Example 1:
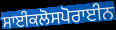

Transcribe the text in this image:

ਸਾਈਕਲੋਸਪੋਰਾਈਨ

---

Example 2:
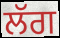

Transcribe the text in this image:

ਲੱਗ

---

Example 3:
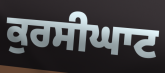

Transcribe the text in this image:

ਕੁਰਸੀਘਾਟ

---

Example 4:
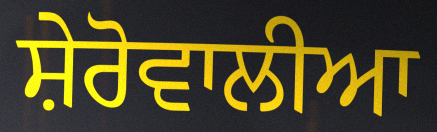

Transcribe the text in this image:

ਸ਼ੇਰੋਵਾਲੀਆ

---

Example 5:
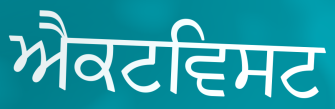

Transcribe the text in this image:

ਐਕਟਵਿਸਟ